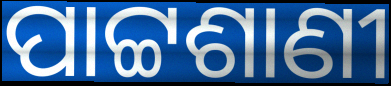
ପାଟ୍ଟଶାଣୀ